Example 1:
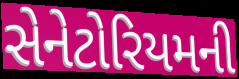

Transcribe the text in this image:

સેનેટોરિયમની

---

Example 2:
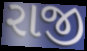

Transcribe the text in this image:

રાજી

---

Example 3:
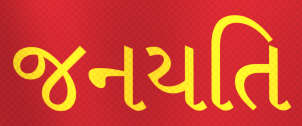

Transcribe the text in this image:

જનયતિ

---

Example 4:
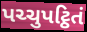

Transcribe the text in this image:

પચ્ચુપટ્ઠિતં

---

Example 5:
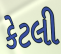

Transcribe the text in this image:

કેટલી